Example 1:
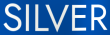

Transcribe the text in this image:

SILVER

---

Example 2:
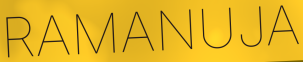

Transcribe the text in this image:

RAMANUJA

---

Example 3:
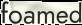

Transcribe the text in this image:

foamed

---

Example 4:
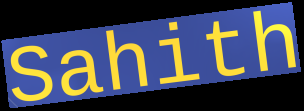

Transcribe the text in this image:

Sahith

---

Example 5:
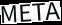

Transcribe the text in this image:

META